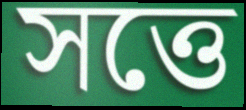
সত্তে